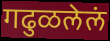
गढुळलेलं